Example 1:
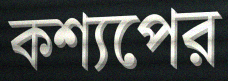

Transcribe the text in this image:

কশ্যপের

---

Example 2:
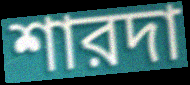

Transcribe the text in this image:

শারদা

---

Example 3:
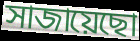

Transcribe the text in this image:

সাজায়েছো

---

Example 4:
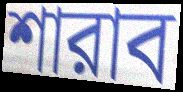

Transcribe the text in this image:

শারাব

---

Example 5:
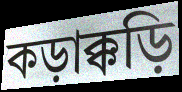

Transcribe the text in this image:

কড়াক্কড়ি